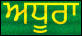
ਅਧੂਰਾ